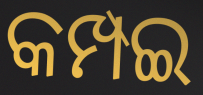
କମ୍ପଇ